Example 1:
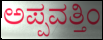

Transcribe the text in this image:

ಅಪ್ಪವತ್ತಿಂ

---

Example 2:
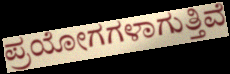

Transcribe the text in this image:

ಪ್ರಯೋಗಗಳಾಗುತ್ತಿವೆ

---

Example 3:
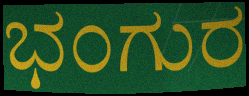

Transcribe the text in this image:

ಭಂಗುರ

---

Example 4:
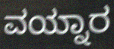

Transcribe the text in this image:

ವಯ್ನಾರ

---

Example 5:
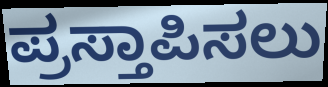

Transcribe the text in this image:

ಪ್ರಸ್ತಾಪಿಸಲು